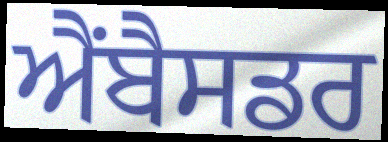
ਐਂਬੈਸਡਰ